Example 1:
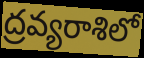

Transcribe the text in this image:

ద్రవ్యరాశిలో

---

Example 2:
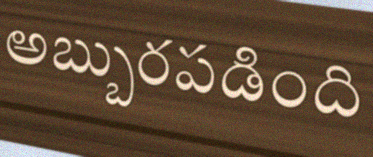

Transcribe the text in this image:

అబ్బురపడింది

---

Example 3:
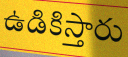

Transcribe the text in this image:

ఉడికిస్తారు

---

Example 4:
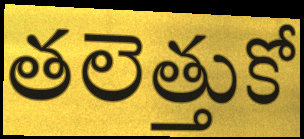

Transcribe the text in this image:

తలెత్తుకో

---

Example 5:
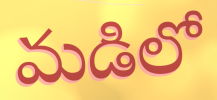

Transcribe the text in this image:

మడిలో